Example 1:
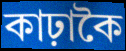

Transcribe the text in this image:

কাঢ়াকৈ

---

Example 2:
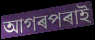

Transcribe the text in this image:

আগৰপৰাই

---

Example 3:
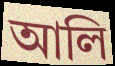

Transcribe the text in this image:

আলি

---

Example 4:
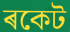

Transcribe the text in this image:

ৰকেট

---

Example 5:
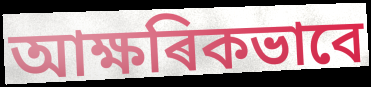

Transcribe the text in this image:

আক্ষৰিকভাবে